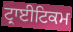
ਟ੍ਰਾਈਟਿਕਮ